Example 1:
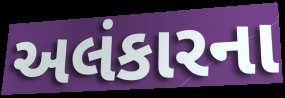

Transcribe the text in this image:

અલંકારના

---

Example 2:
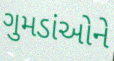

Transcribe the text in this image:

ગુમડાંઓને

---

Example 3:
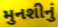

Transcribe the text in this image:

મુનશીનું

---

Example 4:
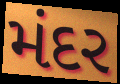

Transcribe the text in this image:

મંદર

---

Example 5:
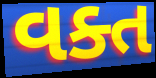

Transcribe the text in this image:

વક્ત